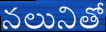
నలునితో